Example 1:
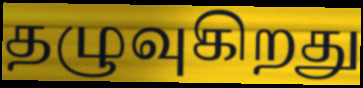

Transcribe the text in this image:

தழுவுகிறது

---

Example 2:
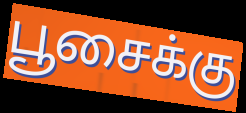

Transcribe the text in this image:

பூசைக்கு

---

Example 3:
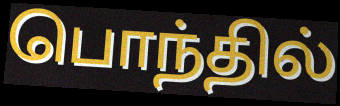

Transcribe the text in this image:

பொந்தில்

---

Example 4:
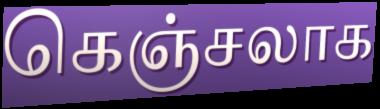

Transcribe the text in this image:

கெஞ்சலாக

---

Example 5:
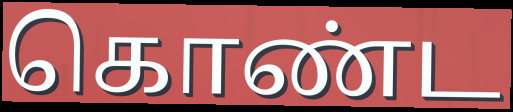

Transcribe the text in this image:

கொண்ட